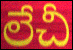
లేచీ